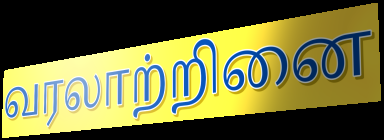
வரலாற்றினை